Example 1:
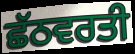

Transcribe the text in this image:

ਛੱਠਵਰਤੀ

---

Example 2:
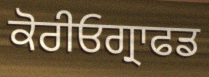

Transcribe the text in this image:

ਕੋਰੀਓਗ੍ਰਾਫਡ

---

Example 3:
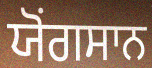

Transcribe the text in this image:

ਯੋਂਗਸਾਨ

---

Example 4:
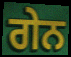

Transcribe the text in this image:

ਗੇਨ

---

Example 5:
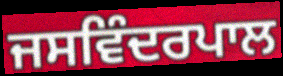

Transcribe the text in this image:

ਜਸਵਿੰਦਰਪਾਲ